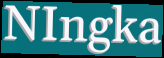
NIngka